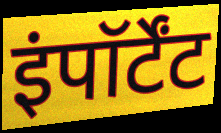
इंपॉर्टेंट